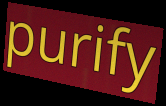
purify